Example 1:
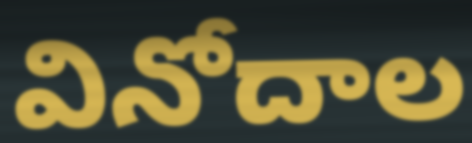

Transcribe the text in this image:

వినోదాల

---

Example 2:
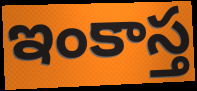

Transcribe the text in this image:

ఇంకాస్త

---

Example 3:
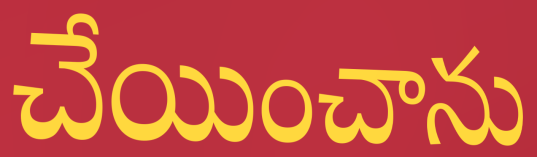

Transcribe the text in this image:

చేయించాను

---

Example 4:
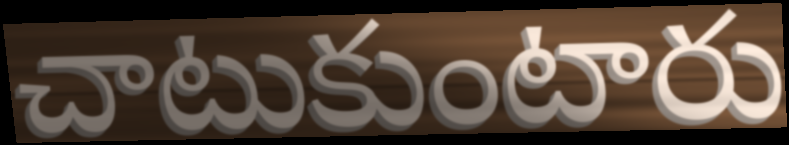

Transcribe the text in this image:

చాటుకుంటారు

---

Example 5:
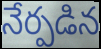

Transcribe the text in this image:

నేర్పడిన